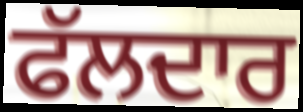
ਫੱਲਦਾਰ